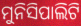
ମୁନିସିପାଲିଟି